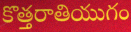
కొత్తరాతియుగం